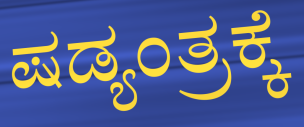
ಷಡ್ಯಂತ್ರಕ್ಕೆ